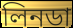
লিনডা